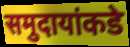
समुदायांकडे